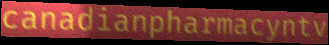
canadianpharmacyntv